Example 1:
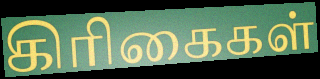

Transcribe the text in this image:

கிரிகைகள்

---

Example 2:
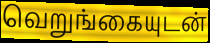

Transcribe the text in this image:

வெறுங்கையுடன்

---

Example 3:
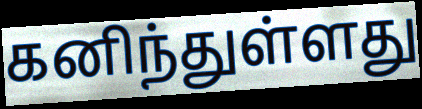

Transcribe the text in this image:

கனிந்துள்ளது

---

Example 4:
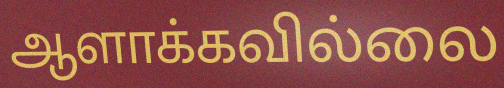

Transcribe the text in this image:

ஆளாக்கவில்லை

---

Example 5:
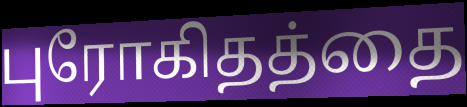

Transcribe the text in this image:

புரோகிதத்தை